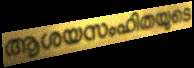
ആശയസംഹിതയുടെ